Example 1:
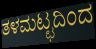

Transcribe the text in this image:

ತಳಮಟ್ಟದಿಂದ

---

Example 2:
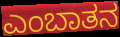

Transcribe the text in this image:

ಎಂಬಾತನ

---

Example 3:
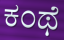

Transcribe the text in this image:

ಕಂಥೆ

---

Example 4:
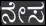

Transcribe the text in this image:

ನೇಸ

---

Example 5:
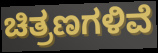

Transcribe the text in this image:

ಚಿತ್ರಣಗಳಿವೆ